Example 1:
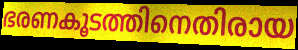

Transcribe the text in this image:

ഭരണകൂടത്തിനെതിരായ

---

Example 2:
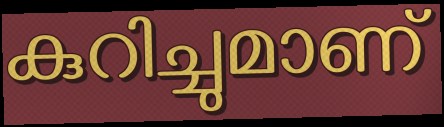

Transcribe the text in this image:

കുറിച്ചുമാണ്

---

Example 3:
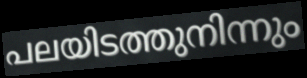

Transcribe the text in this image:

പലയിടത്തുനിന്നും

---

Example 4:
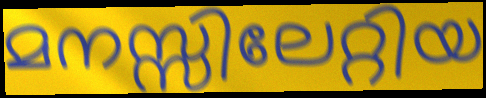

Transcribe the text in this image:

മനസ്സിലേറ്റിയ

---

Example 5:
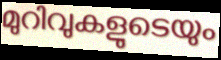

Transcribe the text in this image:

മുറിവുകളുടെയും